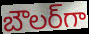
బౌలర్‌గా